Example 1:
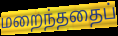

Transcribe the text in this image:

மறைந்ததைப்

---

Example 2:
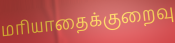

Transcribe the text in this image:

மரியாதைக்குறைவு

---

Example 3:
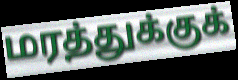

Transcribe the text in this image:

மரத்துக்குக்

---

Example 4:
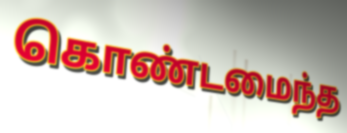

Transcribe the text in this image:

கொண்டமைந்த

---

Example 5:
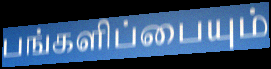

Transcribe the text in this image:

பங்களிப்பையும்